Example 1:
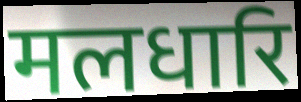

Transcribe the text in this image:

मलधारि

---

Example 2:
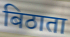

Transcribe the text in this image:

बिठाता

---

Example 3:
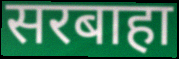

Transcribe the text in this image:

सरबाहा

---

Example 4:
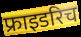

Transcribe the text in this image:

फ्राइडरिच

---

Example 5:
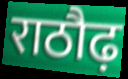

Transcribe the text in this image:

राठौढ़